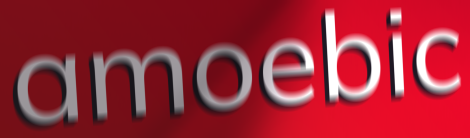
amoebic